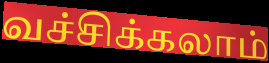
வச்சிக்கலாம்